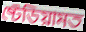
ষ্টেডিয়ামত